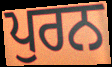
ਪੁਰਨ